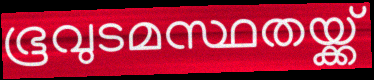
ഭൂവുടമസ്ഥതയ്ക്ക്